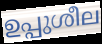
ഉപ്പുശീല